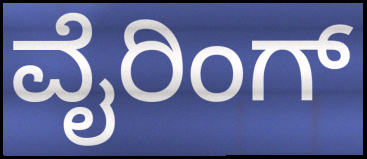
ವೈರಿಂಗ್